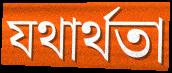
যথার্থতা